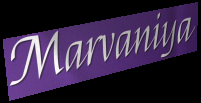
Marvaniya